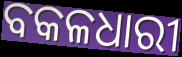
ବକଳଧାରୀ